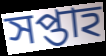
সপ্তাহ